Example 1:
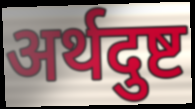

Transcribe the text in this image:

अर्थदुष्ट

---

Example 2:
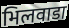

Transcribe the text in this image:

भिलवाडा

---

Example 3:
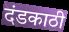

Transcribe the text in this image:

दंडकाठी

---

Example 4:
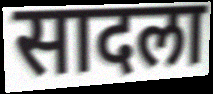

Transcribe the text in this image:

सादला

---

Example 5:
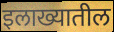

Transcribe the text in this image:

इलाख्यातील